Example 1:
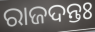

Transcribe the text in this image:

ରାଜଦନ୍ତଃ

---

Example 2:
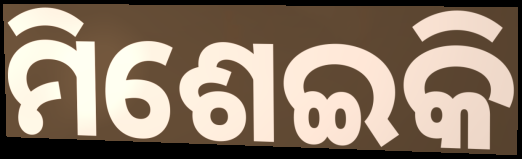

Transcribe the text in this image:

ମିଶେଇକି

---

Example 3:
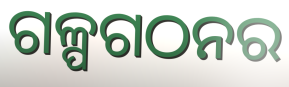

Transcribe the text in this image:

ଗଳ୍ପଗଠନର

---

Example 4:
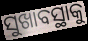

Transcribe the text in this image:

ସୁଖାବସ୍ଥାକୁ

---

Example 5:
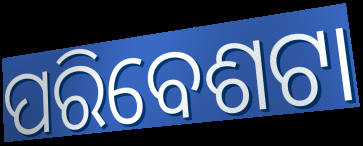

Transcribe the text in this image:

ପରିବେଶଟା